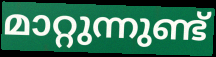
മാറ്റുന്നുണ്ട്